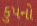
કુપનો